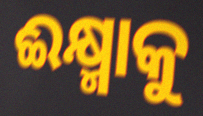
ଈକ୍ଷ୍ମାକୁ